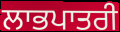
ਲਾਭਪਾਤਰੀ